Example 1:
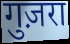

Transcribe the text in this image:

गुज़रा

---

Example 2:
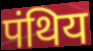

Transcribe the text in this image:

पंथिय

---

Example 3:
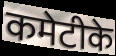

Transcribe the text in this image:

कमेटीके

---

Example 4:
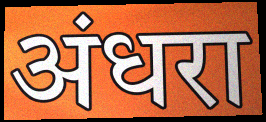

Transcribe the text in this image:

अंधरा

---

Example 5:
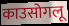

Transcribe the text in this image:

काउसोगलू